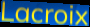
Lacroix